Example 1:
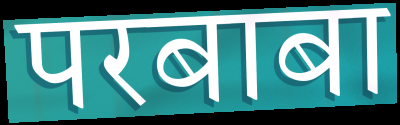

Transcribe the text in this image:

परबाबा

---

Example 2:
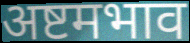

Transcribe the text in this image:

अष्टमभाव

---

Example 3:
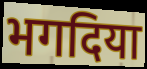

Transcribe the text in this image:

भगदिया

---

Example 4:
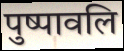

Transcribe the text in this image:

पुष्पावलि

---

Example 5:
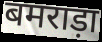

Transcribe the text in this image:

बमराड़ा